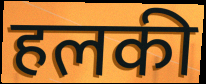
हलकी